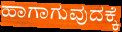
ಹಾಗಾಗುವುದಕ್ಕೆ